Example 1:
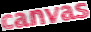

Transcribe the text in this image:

canvas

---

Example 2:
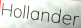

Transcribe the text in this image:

Hollander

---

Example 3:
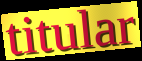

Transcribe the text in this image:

titular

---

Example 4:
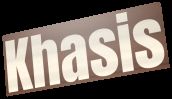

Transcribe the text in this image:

Khasis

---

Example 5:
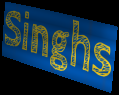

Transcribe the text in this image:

Singhs